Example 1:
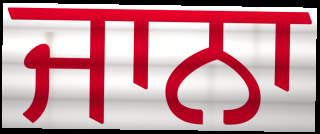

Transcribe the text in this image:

ਜਾਨਾ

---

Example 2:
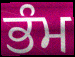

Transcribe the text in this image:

ਭੰਮ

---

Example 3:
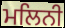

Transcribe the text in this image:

ਮਲਿਨੀ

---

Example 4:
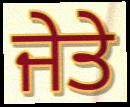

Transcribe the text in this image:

ਜੇਤੇ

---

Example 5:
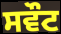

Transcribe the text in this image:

ਸਵੌਟ